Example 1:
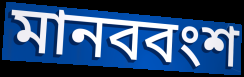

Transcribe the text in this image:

মানববংশ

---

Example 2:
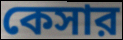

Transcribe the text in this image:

কেসার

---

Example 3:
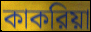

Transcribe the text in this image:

কাকরিয়া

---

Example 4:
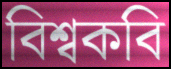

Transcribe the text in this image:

বিশ্বকবি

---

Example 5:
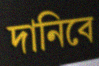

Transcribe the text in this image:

দানিবে